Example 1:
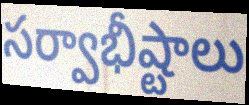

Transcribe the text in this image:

సర్వాభీష్టాలు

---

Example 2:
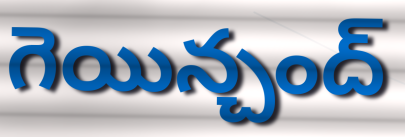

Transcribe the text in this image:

గెయిన్చంద్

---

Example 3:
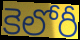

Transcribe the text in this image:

కెలోరీ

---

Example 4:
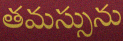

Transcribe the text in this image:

తమస్సును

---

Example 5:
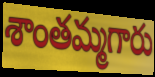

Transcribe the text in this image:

శాంతమ్మగారు